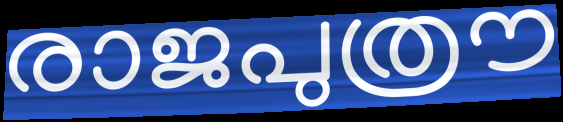
രാജപുത്രൗ